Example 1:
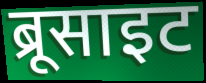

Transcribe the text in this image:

ब्रूसाइट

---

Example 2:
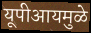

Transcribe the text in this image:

यूपीआयमुळे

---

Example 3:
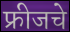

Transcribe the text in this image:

फ्रीजचे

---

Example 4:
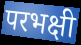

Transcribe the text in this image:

परभक्षी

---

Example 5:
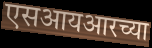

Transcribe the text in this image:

एसआयआरच्या